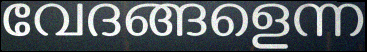
വേദങ്ങളെന്ന